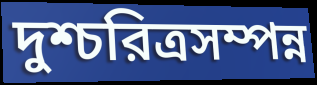
দুশ্চরিত্রসম্পন্ন